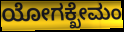
ಯೋಗಕ್ಖೇಮಂ